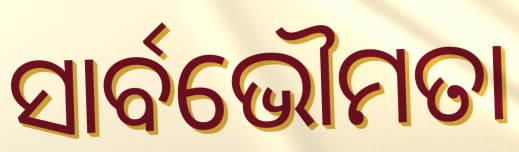
ସାର୍ବଭୌମତା